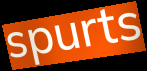
spurts